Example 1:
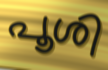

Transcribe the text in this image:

പൂശി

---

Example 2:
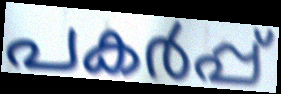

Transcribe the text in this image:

പകർപ്പ്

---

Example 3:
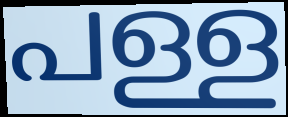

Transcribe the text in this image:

പള്ള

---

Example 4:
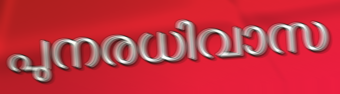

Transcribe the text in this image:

പുനരധിവാസ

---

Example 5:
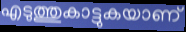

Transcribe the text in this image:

എടുത്തുകാട്ടുകയാണ്